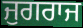
ਜੁਗਰਾਜ